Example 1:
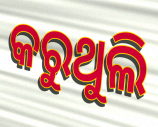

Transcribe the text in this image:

କରୁଥୁଲି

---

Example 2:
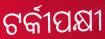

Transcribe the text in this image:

ଟର୍କୀପକ୍ଷୀ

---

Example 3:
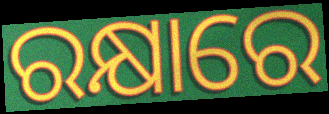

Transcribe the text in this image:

ରକ୍ଷାରେ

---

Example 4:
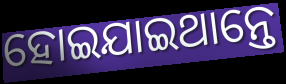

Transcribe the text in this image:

ହୋଇଯାଇଥାନ୍ତେ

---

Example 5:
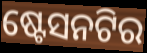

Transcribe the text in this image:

ଷ୍ଟେସନଟିର